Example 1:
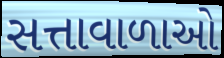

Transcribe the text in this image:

સત્તાવાળાઓ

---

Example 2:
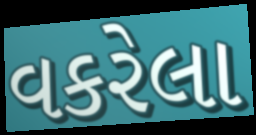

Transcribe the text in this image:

વકરેલા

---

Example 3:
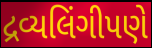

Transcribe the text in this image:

દ્રવ્યલિંગીપણે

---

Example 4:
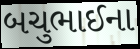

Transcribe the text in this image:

બચુભાઈના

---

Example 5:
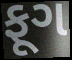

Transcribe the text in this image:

ફૂગ